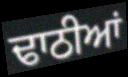
ਢਾਠੀਆਂ